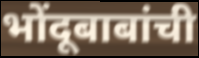
भोंदूबाबांची